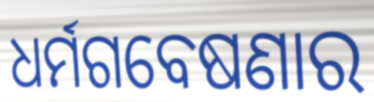
ଧର୍ମଗବେଷଣାର